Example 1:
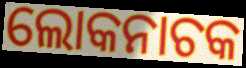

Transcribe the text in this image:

ଲୋକନାଚକ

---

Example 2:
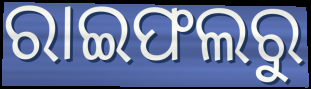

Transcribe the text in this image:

ରାଇଫଲରୁ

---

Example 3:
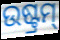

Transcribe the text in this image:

ଉଷ୍ଟ୍ରମ୍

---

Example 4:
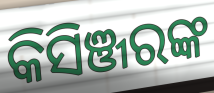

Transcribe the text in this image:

କିସିଞ୍ଜରଙ୍କ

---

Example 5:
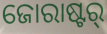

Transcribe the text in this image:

ଜୋରାଷ୍ଟର୍